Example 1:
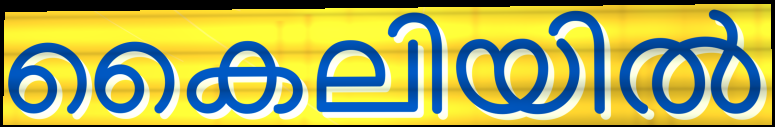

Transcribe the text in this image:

കൈലിയിൽ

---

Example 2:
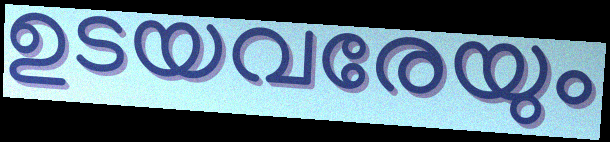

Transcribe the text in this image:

ഉടയവരേയും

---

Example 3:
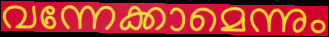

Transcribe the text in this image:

വന്നേക്കാമെന്നും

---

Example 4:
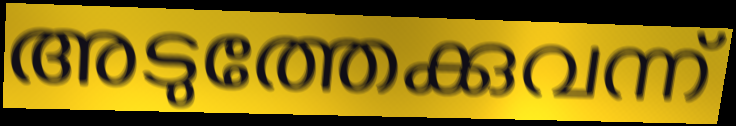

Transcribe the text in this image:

അടുത്തേക്കുവന്ന്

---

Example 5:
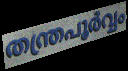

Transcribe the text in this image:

തന്ത്രപൂർവ്വം